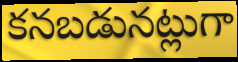
కనబడునట్లుగా